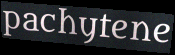
pachytene